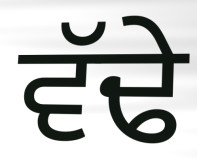
ਵੱਢੇ